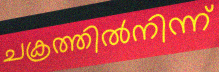
ചക്രത്തിൽനിന്ന്